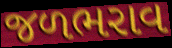
જળભરાવ